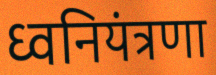
ध्वनियंत्रणा